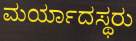
ಮರ್ಯಾದಸ್ಥರು